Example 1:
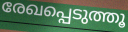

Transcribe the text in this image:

രേഖപ്പെടുത്തൂ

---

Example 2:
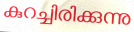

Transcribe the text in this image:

കുറച്ചിരിക്കുന്നു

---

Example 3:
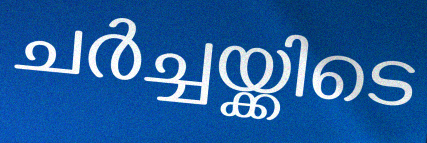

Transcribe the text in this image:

ചർച്ചയ്ക്കിടെ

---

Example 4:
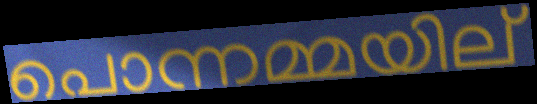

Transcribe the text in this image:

പൊന്നമ്മയില്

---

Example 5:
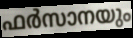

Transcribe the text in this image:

ഫർസാനയും